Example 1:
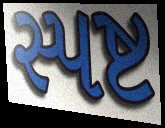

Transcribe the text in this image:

સ્પષ્ટ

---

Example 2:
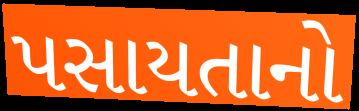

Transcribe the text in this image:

પસાયતાનો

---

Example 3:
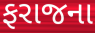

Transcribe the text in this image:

ફરાજના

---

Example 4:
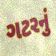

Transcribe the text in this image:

ગટરનું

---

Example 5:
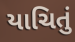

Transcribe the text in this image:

યાચિતું